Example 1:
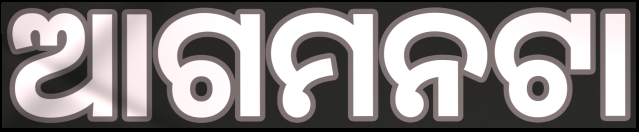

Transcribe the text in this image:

ଆଗମନଟା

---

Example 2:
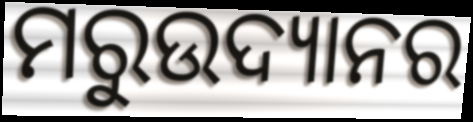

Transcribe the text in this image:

ମରୁଉଦ୍ୟାନର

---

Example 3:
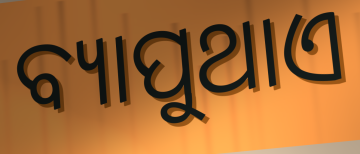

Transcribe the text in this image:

ବ୍ୟାପୁଥାଏ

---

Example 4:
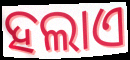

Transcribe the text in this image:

ହଲାଏ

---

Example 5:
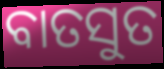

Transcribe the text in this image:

ବାତସୁତ